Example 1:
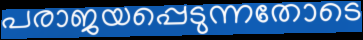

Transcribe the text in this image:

പരാജയപ്പെടുന്നതോടെ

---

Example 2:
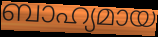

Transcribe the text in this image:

ബാഹ്യമായ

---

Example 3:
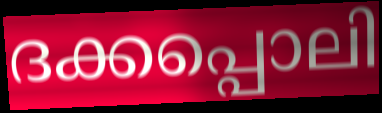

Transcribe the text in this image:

ദക്കപ്പൊലി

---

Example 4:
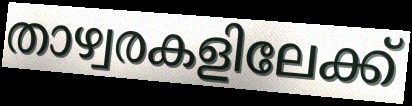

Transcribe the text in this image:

താഴ്വരകളിലേക്ക്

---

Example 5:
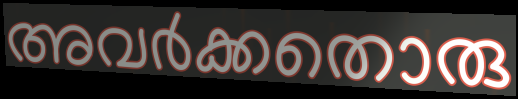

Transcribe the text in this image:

അവർക്കതൊരു